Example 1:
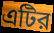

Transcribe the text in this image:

এটির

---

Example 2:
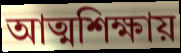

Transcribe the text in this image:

আত্মশিক্ষায়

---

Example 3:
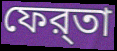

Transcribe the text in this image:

ফের্‌তা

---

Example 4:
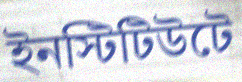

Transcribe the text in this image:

ইনস্টিটিউটে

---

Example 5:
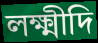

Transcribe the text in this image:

লক্ষ্মীদি